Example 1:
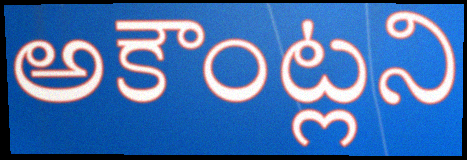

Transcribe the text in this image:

అకౌంట్లని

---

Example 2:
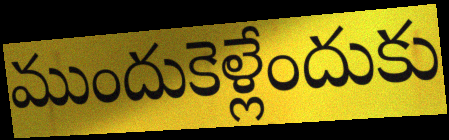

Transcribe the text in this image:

ముందుకెళ్లేందుకు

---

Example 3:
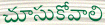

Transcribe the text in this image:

చూసుకోవాలి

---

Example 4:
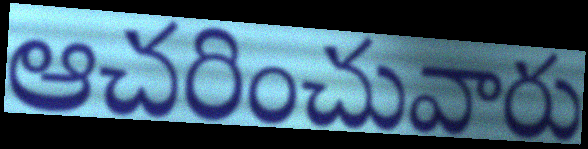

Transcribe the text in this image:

ఆచరించువారు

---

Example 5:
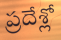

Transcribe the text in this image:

ప్రదేశ్లో